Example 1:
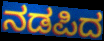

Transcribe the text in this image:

ನಡಪಿದ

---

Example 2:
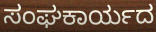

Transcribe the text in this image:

ಸಂಘಕಾರ್ಯದ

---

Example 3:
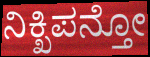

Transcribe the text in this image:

ನಿಕ್ಖಿಪನ್ತೋ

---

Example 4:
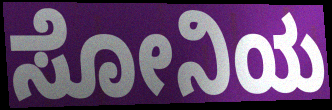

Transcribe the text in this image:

ಸೋನಿಯ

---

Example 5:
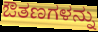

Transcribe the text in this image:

ಔತಣಗಳನ್ನು